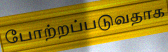
போற்றப்படுவதாக